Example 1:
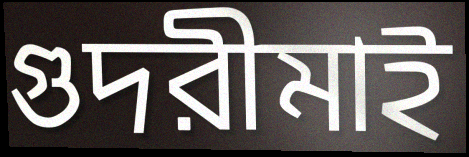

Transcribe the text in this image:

গুদরীমাই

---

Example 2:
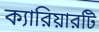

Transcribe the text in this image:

ক্যারিয়ারটি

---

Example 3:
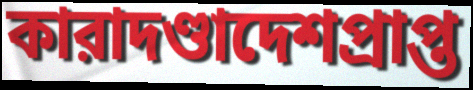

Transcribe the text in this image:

কারাদণ্ডাদেশপ্রাপ্ত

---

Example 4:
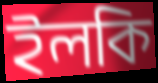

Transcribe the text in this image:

ইলকি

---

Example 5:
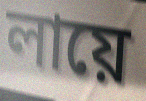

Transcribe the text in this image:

লায়ে